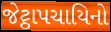
જેટ્ઠાપચાયિનો